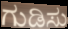
ಗುಡಿಸು